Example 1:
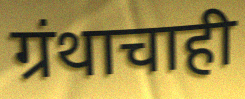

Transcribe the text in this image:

ग्रंथाचाही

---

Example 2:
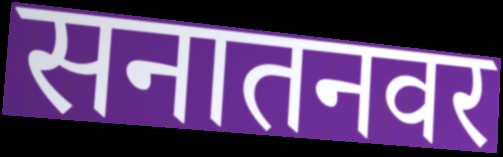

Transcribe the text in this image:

सनातनवर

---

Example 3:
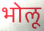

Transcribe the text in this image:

भोलू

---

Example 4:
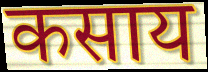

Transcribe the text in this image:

कसाय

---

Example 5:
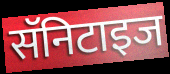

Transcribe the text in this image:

सॅनिटाइज